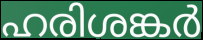
ഹരിശങ്കർ